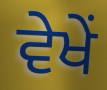
ਵੇਖੇਂ